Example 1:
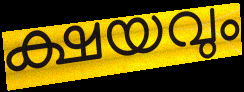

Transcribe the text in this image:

ക്ഷയവും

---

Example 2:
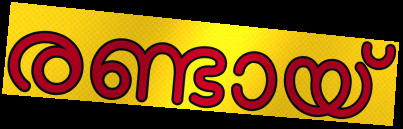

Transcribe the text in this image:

രണ്ടായ്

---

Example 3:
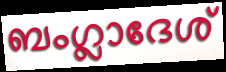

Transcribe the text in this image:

ബംഗ്ലാദേശ്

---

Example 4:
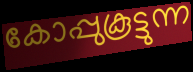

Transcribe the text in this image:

കോപ്പുകൂട്ടുന്ന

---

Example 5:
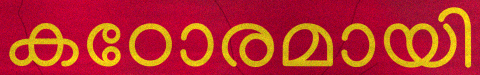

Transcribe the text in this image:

കഠോരമായി